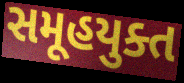
સમૂહયુક્ત